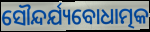
ସୌନ୍ଦର୍ଯ୍ୟବୋଧାତ୍ମକ